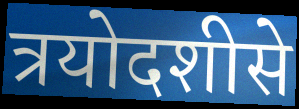
त्रयोदशीसे